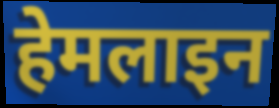
हेमलाइन